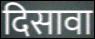
दिसावा